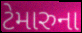
ટેમારુના